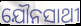
ଯୌନସାଥୀ